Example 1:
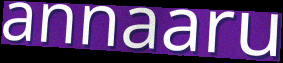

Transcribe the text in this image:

annaaru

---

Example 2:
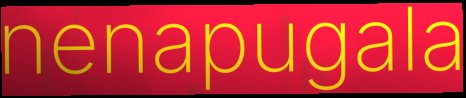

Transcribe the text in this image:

nenapugala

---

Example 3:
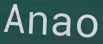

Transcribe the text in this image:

Anao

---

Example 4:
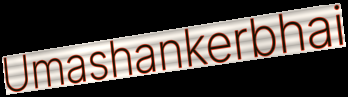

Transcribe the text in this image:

Umashankerbhai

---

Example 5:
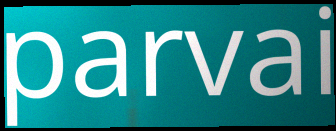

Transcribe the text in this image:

parvai